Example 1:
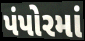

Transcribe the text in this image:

પંપોરમાં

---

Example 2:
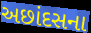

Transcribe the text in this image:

અછાંદસના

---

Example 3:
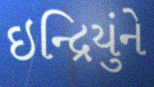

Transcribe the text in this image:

ઇન્દ્રિયુંને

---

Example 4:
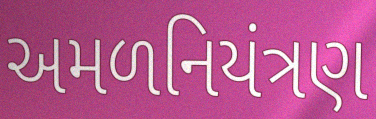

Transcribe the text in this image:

અમળનિયંત્રણ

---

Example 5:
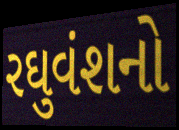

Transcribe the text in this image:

રઘુવંશનો